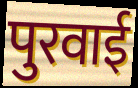
पुरवाई